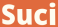
Suci